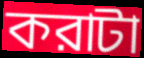
করাটা